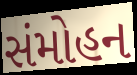
સંમોહન